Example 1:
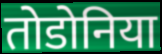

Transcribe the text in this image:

तोडोनिया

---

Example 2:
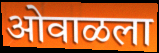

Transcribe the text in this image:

ओवाळला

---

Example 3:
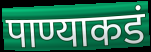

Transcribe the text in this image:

पाण्याकडं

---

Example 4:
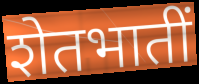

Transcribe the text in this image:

शेतभातीं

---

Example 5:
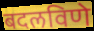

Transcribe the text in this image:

बदलविणे